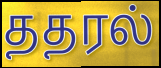
ததரல்